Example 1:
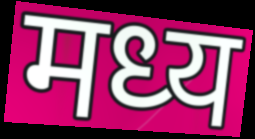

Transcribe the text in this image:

मध्‍य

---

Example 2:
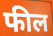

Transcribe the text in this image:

फील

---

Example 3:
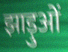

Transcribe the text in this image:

झाड़ुओं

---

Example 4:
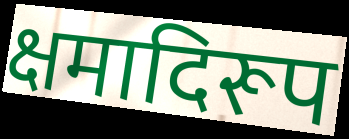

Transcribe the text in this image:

क्षमादिरूप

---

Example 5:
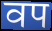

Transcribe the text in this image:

वप